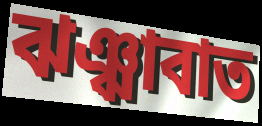
ঝঞ্ঝাবাত